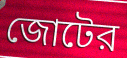
জোটের